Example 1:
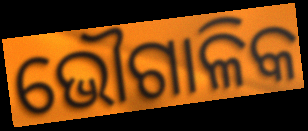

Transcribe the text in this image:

ଭୌଗାଳିକ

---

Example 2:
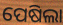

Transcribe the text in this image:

ପେଷିଲା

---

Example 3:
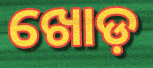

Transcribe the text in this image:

ଖୋଡ଼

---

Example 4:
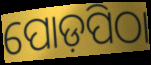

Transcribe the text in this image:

ପୋଡ଼ପିଠା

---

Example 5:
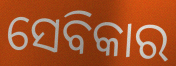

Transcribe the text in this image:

ସେବିକାର